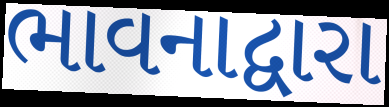
ભાવનાદ્વારા